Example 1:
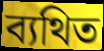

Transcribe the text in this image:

ব্যথিত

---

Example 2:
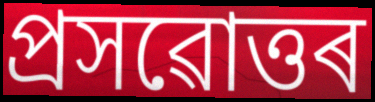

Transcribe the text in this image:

প্ৰসৱোত্তৰ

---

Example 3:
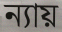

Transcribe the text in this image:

ন্যায়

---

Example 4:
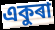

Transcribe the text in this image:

একুৰা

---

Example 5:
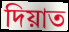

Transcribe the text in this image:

দিয়াত